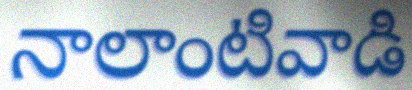
నాలాంటివాడి